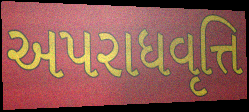
અપરાધવૃત્તિ